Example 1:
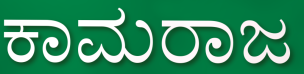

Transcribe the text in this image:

ಕಾಮರಾಜ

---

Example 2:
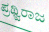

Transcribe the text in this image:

ಪ್ರಥ್ವಿರಾಜ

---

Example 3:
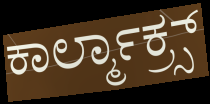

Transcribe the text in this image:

ಕಾರ್ಲ್ಮಾಕ್ರ್ಸ್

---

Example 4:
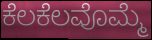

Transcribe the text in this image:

ಕೆಲಕೆಲವೊಮ್ಮೆ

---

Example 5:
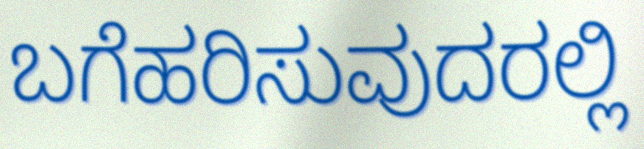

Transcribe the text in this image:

ಬಗೆಹರಿಸುವುದರಲ್ಲಿ